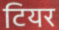
टियर